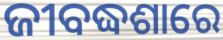
ଜୀବଦ୍ଧଶାରେ